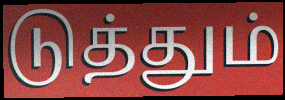
டுத்தும்